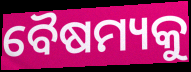
ବୈଷମ୍ୟକୁ